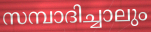
സമ്പാദിച്ചാലും